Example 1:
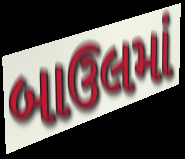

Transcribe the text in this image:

બાઉલમાં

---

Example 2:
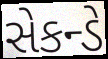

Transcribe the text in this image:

સેકન્ડે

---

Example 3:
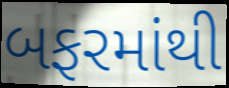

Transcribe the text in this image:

બફરમાંથી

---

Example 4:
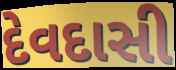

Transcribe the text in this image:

દેવદાસી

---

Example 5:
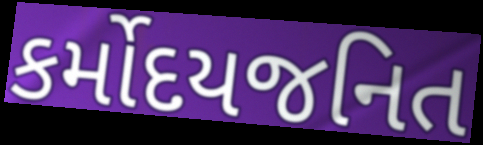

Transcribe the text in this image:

કર્મોદયજનિત